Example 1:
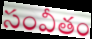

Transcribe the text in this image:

సంవీతం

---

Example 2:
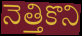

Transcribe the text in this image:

నెత్తికొని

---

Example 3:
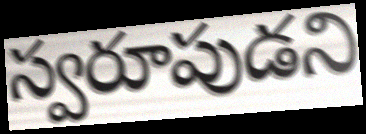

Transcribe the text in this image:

స్వరూపుడని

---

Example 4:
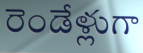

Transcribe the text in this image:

రెండేళ్లుగా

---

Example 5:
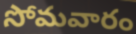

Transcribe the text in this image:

సోమవారం